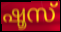
ഷൂസ്